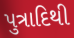
પુત્રાદિથી